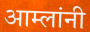
आम्लांनी